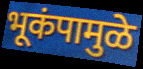
भूकंपामुळे